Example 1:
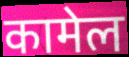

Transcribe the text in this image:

कामेल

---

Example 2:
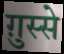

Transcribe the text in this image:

ग़ुस्से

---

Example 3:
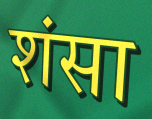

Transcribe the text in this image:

शंसा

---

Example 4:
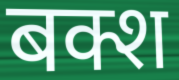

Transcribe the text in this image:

बक्श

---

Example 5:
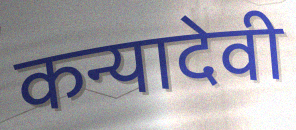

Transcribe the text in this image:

कन्यादेवी